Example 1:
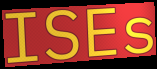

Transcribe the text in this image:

ISEs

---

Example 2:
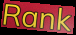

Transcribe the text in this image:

Rank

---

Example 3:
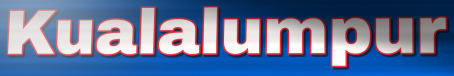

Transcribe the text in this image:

Kualalumpur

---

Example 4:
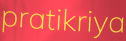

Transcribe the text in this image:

pratikriya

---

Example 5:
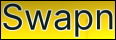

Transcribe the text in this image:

Swapn